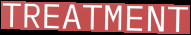
TREATMENT